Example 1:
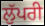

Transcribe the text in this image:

ਲੁੱਪਰੀ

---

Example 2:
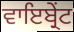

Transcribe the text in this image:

ਵਾਇਬ੍ਰੇਂਟ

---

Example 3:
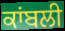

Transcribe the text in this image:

ਕਾਂਬਲੀ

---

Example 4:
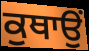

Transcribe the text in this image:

ਕੁਥਾਉਂ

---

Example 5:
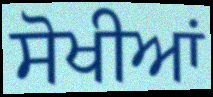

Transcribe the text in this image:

ਸੋਖੀਆਂ